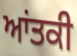
ਆਂਤਕੀ